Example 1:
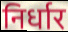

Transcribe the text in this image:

निर्धार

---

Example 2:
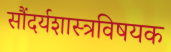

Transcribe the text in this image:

सौंदर्यशास्त्रविषयक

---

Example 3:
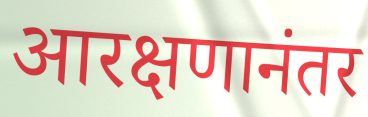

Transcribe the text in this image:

आरक्षणानंतर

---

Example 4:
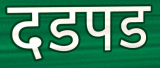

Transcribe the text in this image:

दडपड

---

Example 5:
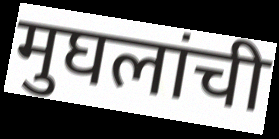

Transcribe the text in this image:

मुघलांची